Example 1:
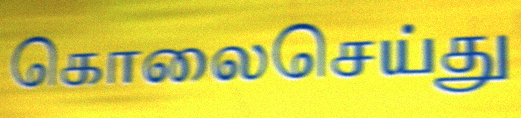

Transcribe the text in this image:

கொலைசெய்து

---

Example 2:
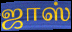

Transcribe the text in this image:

ஜாஸ்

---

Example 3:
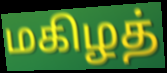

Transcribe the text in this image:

மகிழத்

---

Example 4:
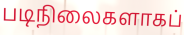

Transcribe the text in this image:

படிநிலைகளாகப்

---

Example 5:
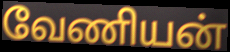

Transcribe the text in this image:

வேணியன்